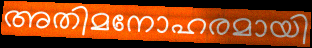
അതിമനോഹരമായി